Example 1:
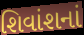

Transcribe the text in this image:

શિવાંશનાં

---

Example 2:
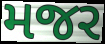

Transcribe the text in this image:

મજર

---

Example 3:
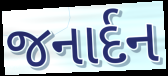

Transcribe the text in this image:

જનાર્દન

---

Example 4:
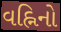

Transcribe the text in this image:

વહ્નિનો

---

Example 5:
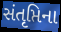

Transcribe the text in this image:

સંતૃપ્તિના